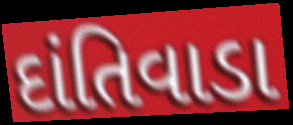
દાંતિવાડા